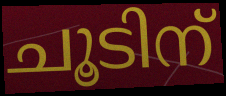
ചൂടിന്